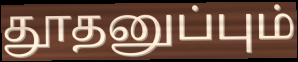
தூதனுப்பும்